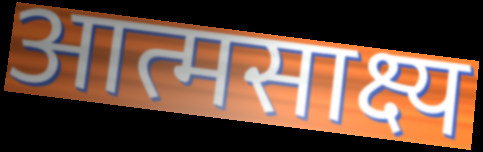
आत्मसाक्ष्य